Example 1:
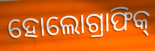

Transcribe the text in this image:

ହୋଲୋଗ୍ରାଫିକ୍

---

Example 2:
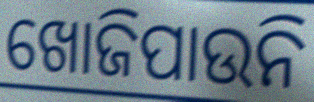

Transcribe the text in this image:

ଖୋଜିପାଉନି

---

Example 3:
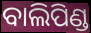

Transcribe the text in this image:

ବାଲିପିଣ୍ଡ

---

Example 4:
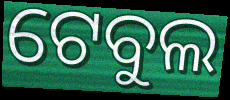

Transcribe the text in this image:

ଟେବୁଲ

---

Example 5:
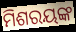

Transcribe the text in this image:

ମିଶରୟଙ୍କ